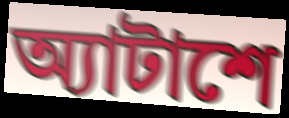
অ্যাটাশে